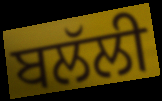
ਬਲੱਲੀ